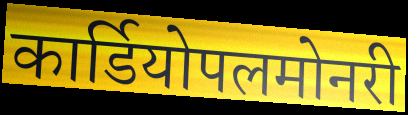
कार्डियोपलमोनरी